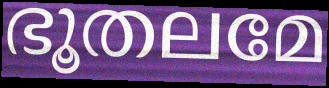
ഭൂതലമേ